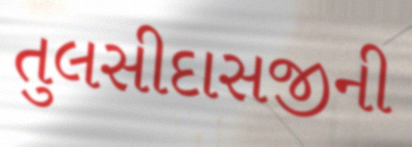
તુલસીદાસજીની